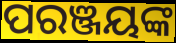
ପରଞ୍ଜୟଙ୍କ